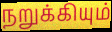
நறுக்கியும்